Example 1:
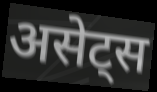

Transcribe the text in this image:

असेट्स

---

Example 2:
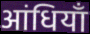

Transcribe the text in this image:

आंधियाँ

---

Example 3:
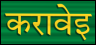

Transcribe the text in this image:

करावेइ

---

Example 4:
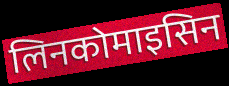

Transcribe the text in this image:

लिनकोमाइसिन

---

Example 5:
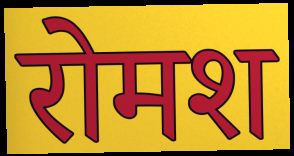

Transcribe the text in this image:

रोमश